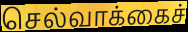
செல்வாக்கைச்